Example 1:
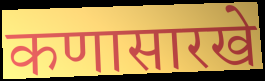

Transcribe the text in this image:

कणासारखे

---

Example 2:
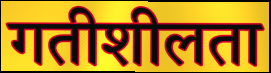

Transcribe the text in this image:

गतीशीलता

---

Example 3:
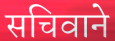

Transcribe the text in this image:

सचिवाने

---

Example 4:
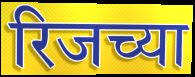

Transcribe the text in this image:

रिजच्या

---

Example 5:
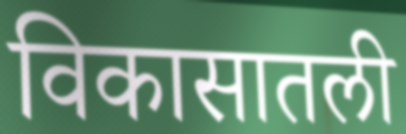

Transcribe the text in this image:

विकासातली